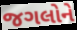
જગલોને